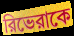
রিভেরাকে